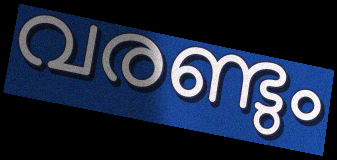
വരണ്ടും